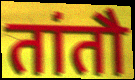
तांतौ